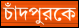
চাঁদপুরকে